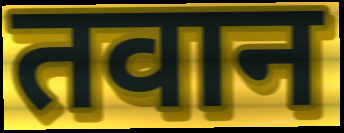
तवान